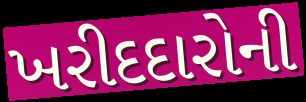
ખરીદદારોની